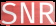
SNR